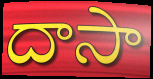
దాసా